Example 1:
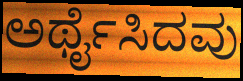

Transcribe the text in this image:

ಅರ್ಥೈಸಿದವು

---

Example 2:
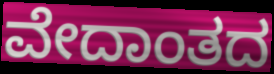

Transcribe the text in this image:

ವೇದಾಂತದ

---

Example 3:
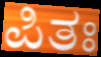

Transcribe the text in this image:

ಪಿತಃ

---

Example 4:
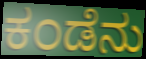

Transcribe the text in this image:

ಕಂಡೆನು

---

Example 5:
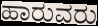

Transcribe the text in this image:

ಹಾರುವರು